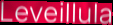
Leveillula